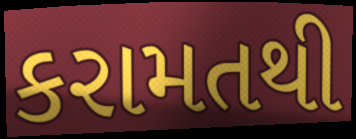
કરામતથી